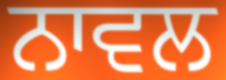
ਨਾਵਲ